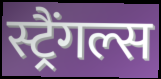
स्ट्रैंगल्स